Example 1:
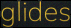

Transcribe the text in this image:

glides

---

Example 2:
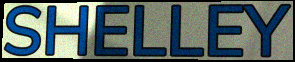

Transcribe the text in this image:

SHELLEY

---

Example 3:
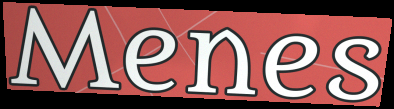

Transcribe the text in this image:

Menes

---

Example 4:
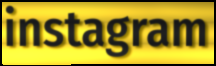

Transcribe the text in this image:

instagram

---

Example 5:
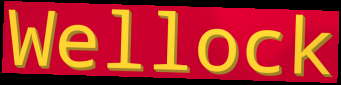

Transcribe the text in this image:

Wellock